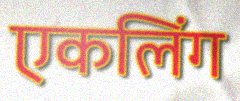
एकलिंग